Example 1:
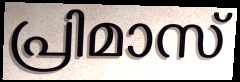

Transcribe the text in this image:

പ്രിമാസ്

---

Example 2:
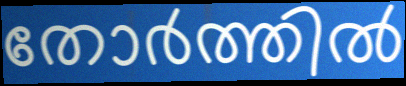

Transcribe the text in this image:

തോർത്തിൽ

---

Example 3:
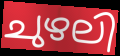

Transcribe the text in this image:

ചുഴലി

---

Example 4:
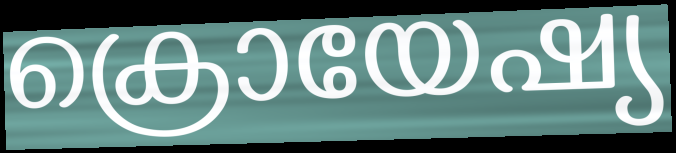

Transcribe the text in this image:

ക്രൊയേഷ്യ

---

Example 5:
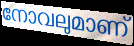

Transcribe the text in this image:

നോവലുമാണ്